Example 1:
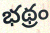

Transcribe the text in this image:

భథ్రం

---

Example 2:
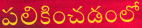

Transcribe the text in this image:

పలికించడంలో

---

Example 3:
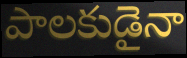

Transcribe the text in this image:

పాలకుడైనా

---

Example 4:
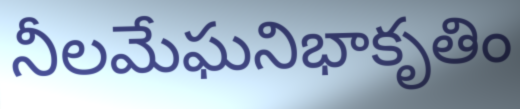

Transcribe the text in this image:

నీలమేఘనిభాకృతిం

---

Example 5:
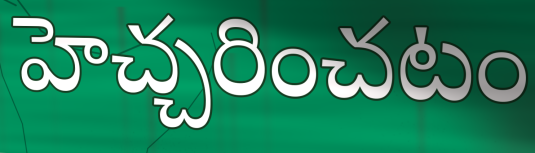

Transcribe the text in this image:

హెచ్చరించటం